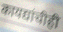
कायद्यांचीही